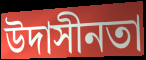
উদাসীনতা